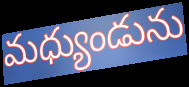
మధ్యుండును